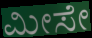
ಮೀಸೇ